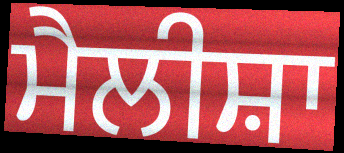
ਮੈਲੀਸ਼ਾ